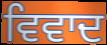
ਵਿਵਾਦ